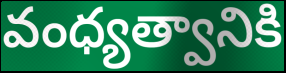
వంధ్యత్వానికి